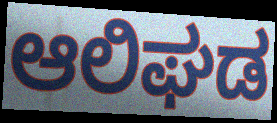
ಆಲಿಘಡ